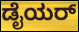
ಡೈಯರ್